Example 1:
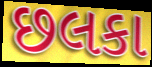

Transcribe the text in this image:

છલકા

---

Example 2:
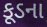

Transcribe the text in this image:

કૂડના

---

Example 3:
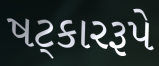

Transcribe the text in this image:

ષટ્કારરૂપે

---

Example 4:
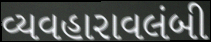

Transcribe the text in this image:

વ્યવહારાવલંબી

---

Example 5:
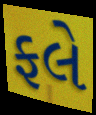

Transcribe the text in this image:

ફલે